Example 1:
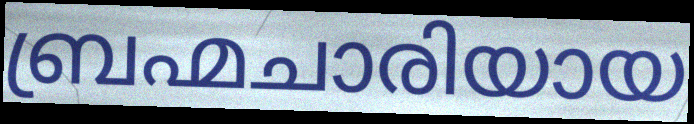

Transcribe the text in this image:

ബ്രഹ്മചാരിയായ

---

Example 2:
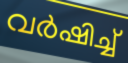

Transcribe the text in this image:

വർഷിച്ച്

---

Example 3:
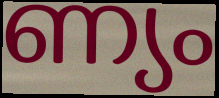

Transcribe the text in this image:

ണ്യം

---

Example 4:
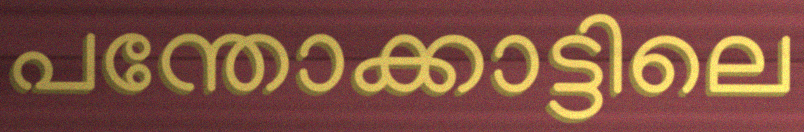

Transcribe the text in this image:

പന്തോക്കാട്ടിലെ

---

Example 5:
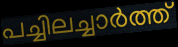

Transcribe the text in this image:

പച്ചിലച്ചാർത്ത്